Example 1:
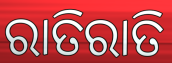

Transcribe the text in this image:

ରାତିରାତି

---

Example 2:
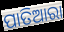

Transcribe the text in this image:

ପାତିଆରା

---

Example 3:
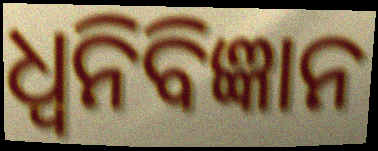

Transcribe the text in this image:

ଧ୍ୱନିବିଜ୍ଞାନ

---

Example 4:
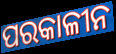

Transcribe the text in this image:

ପରକାଳୀନ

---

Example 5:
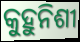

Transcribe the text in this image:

କୁହୁନିଶୀ